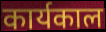
कार्यकाल